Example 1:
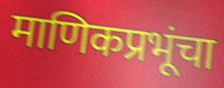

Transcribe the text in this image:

माणिकप्रभूंचा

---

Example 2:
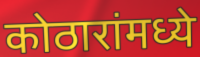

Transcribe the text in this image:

कोठारांमध्ये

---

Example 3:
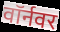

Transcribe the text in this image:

वॉर्नवर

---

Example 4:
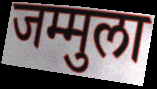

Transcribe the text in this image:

जम्मुला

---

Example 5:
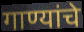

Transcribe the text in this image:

गाण्यांचे